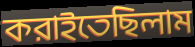
করাইতেছিলাম